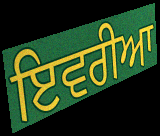
ਇਵਰੀਆ